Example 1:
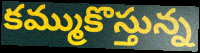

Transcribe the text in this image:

కమ్ముకొస్తున్న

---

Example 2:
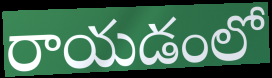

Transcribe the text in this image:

రాయడంలో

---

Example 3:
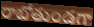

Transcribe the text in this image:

రాబోతుండగా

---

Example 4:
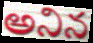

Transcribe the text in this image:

అనిన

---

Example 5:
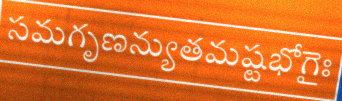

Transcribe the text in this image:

సమగృణన్యుతమష్టభోగైః